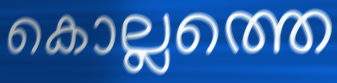
കൊല്ലത്തെ